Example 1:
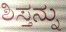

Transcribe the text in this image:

ಶಿಸ್ತನ್ನು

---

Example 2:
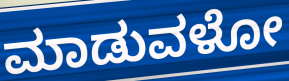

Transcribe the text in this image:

ಮಾಡುವಳೋ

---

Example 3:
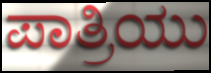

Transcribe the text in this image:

ಪಾತ್ರಿಯು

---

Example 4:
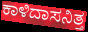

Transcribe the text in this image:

ಕಾಳಿದಾಸನಿತ್ತ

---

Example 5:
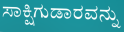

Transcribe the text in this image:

ಸಾಕ್ಷಿಗುಡಾರವನ್ನು